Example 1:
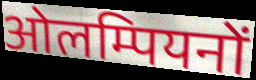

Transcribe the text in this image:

ओलम्पियनों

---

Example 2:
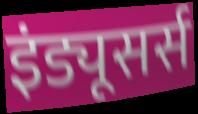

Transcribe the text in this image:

इंड्यूसर्स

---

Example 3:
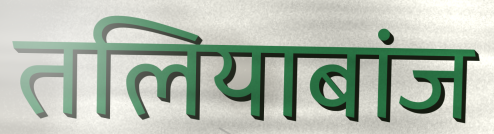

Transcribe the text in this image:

तलियाबांज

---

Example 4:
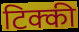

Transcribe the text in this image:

टिक्‍की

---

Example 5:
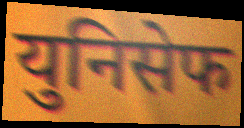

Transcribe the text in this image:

युनिसेफ